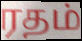
ரதம்